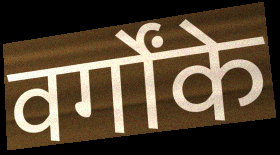
वर्गोंके